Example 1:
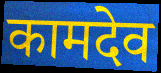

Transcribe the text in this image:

कामदेव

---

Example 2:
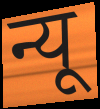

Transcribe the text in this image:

न्यू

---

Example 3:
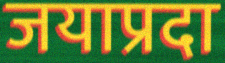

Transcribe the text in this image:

जयाप्रदा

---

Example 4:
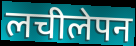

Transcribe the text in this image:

लचीलेपन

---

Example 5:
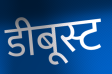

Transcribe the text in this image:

डीबूस्ट